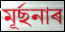
মূৰ্ছনাৰ